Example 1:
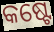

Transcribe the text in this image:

କଷ୍ଟେ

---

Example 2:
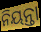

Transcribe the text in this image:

ନିୟନ୍ତା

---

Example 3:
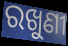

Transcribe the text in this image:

ରଖୁଣୀ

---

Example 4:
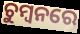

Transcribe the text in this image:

ଚୁମ୍ୱନରେ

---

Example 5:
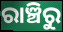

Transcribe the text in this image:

ରାଞ୍ଚିରୁ